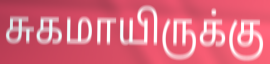
சுகமாயிருக்கு